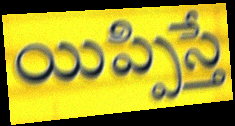
యిప్పిస్తే